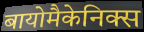
बायोमैकेनिक्स